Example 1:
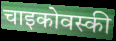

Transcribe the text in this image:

चाइकोवस्की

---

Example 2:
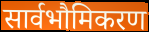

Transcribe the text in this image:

सार्वभौमिकरण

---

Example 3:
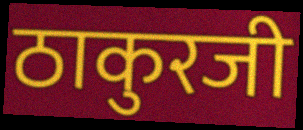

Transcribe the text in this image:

ठाकुरजी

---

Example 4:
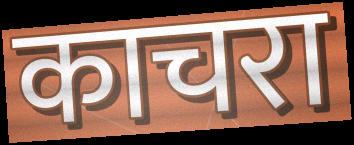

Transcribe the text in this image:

काचरा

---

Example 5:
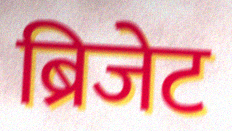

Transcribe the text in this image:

ब्रिजेट